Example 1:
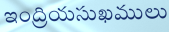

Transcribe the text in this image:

ఇంద్రియసుఖములు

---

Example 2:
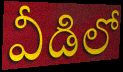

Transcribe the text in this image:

వీడిలో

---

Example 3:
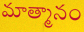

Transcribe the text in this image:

మాత్మానం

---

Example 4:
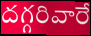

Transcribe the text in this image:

దగ్గరివారే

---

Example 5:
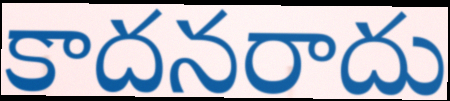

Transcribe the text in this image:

కాదనరాదు